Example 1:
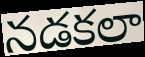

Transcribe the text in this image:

నడకలా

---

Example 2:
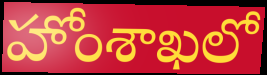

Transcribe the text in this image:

హోంశాఖలో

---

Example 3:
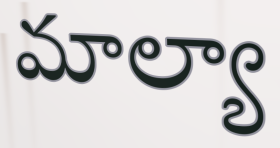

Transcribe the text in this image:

మాల్యా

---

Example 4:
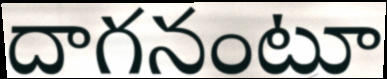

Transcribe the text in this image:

దాగనంటూ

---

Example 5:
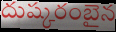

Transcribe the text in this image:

దుష్కరంబైన